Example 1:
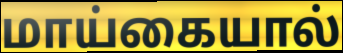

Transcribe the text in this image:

மாய்கையால்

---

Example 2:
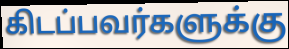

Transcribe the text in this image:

கிடப்பவர்களுக்கு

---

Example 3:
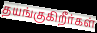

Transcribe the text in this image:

தயங்குகிறீர்கள்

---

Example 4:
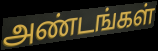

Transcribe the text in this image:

அண்டங்கள்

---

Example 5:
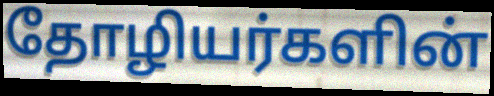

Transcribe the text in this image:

தோழியர்களின்